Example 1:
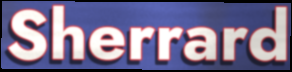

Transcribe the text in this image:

Sherrard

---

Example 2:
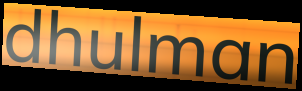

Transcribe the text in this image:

dhulman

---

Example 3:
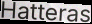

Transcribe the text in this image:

Hatteras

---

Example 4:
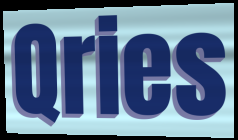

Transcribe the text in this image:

Qries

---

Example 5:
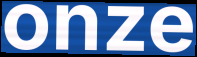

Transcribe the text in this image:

onze